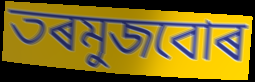
তৰমুজবোৰ